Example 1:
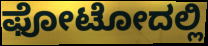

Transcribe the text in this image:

ಫೋಟೋದಲ್ಲಿ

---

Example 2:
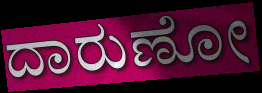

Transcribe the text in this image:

ದಾರುಣೋ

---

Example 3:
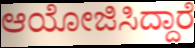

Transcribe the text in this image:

ಆಯೋಜಿಸಿದ್ದಾರೆ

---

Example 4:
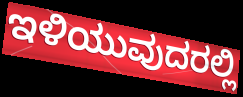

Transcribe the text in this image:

ಇಳಿಯುವುದರಲ್ಲಿ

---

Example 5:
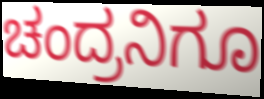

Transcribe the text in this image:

ಚಂದ್ರನಿಗೂ